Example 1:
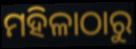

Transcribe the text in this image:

ମହିଳାଠାରୁ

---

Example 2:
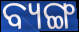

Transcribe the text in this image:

ବ୍ୟଙ୍ଗ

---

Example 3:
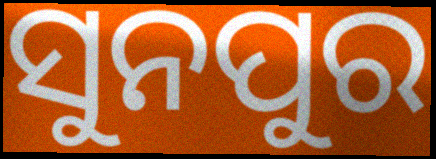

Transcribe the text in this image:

ସୁନପୁର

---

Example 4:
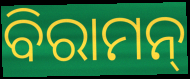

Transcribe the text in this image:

ବିରାମନ୍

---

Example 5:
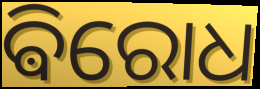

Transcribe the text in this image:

ଵିରୋଧ